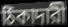
ঠিকাদারী